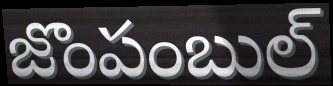
జొంపంబుల్